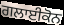
ਗਲਾਈਕੋਨ